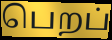
பெறப்